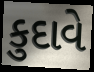
કુદાવે